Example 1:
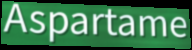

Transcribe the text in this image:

Aspartame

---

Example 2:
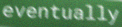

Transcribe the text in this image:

eventually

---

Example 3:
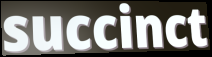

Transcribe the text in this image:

succinct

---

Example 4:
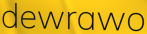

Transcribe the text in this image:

dewrawo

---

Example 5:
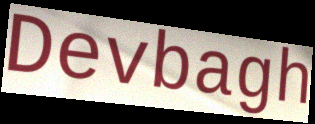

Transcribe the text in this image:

Devbagh